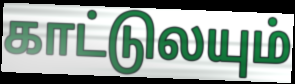
காட்டுலயும்